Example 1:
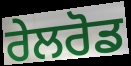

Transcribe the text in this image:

ਰੇਲਰੋਡ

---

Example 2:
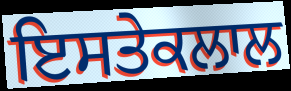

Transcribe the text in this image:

ਇਸਤੇਕਲਾਲ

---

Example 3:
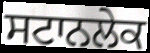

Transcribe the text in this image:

ਸਟਾਨਲੇਕ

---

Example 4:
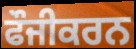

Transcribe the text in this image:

ਫੌਜੀਕਰਨ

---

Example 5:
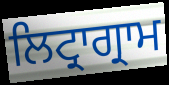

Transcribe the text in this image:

ਲਿਟ੍ਰਾਗ੍ਰਾਮ